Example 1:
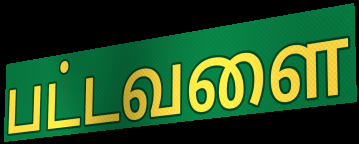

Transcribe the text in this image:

பட்டவளை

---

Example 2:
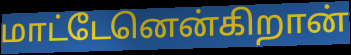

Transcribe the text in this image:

மாட்டேனென்கிறான்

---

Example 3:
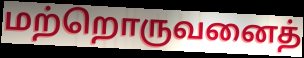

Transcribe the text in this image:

மற்றொருவனைத்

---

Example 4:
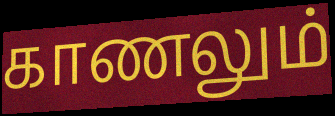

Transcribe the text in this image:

காணலும்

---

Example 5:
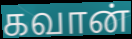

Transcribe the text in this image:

கவான்